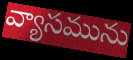
వ్యాసమును